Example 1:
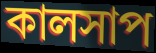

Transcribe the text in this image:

কালসাপ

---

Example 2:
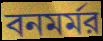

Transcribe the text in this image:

বনমর্মর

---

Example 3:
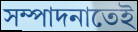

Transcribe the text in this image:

সম্পাদনাতেই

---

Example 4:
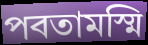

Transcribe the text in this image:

পবতামস্মি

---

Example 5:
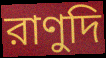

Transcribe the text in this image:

রাণুদি